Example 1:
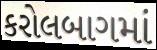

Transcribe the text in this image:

કરોલબાગમાં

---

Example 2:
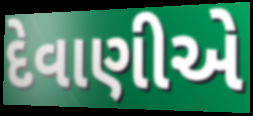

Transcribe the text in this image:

દેવાણીએ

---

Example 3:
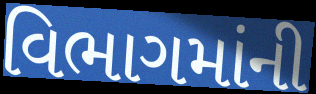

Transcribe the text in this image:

વિભાગમાંની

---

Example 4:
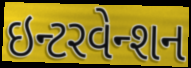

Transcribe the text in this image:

ઇન્ટરવેન્શન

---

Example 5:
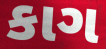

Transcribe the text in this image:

કાગ